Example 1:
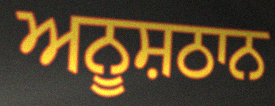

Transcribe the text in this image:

ਅਨੂਸ਼ਠਾਨ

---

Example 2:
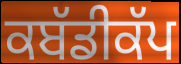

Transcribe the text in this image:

ਕਬੱਡੀਕੱਪ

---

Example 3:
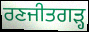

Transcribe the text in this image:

ਰਣਜੀਤਗੜ੍ਹ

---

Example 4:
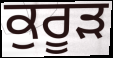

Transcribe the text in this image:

ਕੁਰੂੜ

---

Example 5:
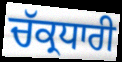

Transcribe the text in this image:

ਚੱਕ੍ਰਧਾਰੀ